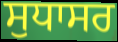
ਸੁਧਾਸਰ